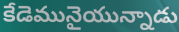
కేడెమునైయున్నాడు